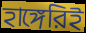
হাঙ্গেরিই